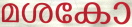
മശകോ